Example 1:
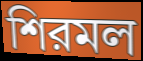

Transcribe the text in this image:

শিরমল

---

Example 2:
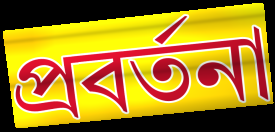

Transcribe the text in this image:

প্রবর্তনা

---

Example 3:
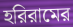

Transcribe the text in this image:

হরিরামের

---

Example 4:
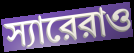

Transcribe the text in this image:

স্যারেরাও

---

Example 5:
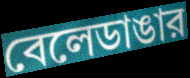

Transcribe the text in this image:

বেলেডাঙার